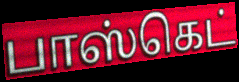
பாஸ்கெட்